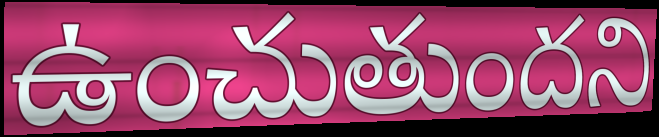
ఉంచుతుందని